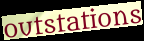
outstations